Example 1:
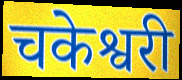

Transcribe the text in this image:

चकेश्वरी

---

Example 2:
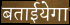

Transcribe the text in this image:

बताईयेगा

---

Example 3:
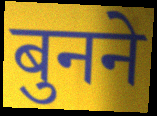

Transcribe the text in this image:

बुनने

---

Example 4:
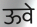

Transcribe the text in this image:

ऊवे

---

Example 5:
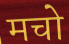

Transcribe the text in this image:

मचो